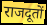
राजदूतों